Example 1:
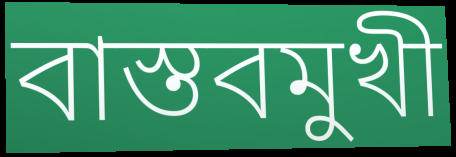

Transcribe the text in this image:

বাস্তবমুখী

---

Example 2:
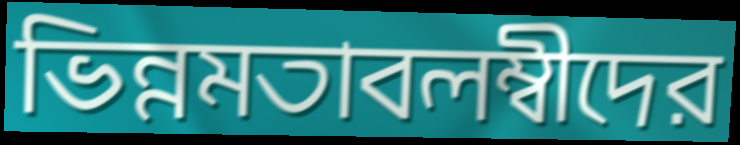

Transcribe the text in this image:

ভিন্নমতাবলম্বীদের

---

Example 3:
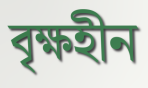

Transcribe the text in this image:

বৃক্ষহীন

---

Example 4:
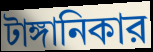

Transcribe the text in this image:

টাঙ্গানিকার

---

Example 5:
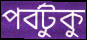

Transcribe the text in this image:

পর্বটুকু